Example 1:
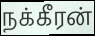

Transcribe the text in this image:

நக்கீரன்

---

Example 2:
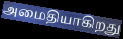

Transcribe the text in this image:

அமைதியாகிறது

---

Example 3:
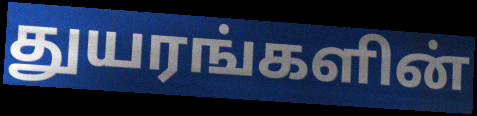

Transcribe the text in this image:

துயரங்களின்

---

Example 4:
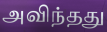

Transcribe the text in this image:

அவிந்தது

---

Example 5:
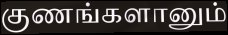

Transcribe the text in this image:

குணங்களானும்